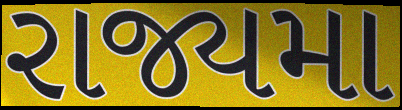
રાજ્યમા